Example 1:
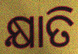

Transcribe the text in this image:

କ୍ଷାତି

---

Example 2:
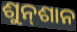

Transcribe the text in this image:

ଶୁନ୍‍ଶାନ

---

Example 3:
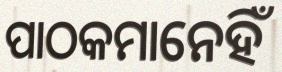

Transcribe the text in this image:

ପାଠକମାନେହିଁ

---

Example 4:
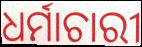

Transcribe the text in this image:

ଧର୍ମାଚାରୀ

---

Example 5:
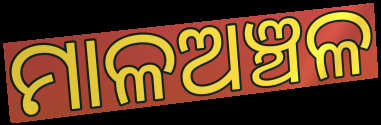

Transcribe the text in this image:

ମାଳଅଞ୍ଚଳ